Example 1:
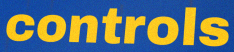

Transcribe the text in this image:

controls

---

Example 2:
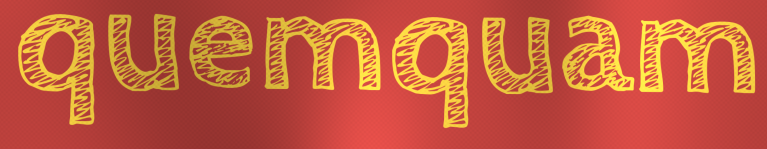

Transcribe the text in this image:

quemquam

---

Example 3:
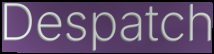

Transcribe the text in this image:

Despatch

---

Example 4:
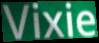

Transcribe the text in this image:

Vixie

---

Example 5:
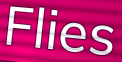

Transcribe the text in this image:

Flies